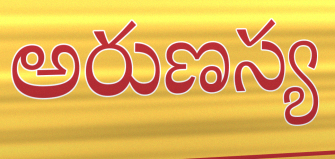
అరుణస్య